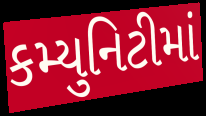
કમ્યુનિટીમાં